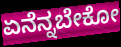
ಏನೆನ್ನಬೇಕೋ